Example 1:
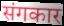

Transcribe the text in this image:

संगकार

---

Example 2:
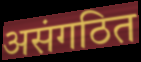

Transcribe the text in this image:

असंगठित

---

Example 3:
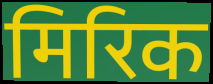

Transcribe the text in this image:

मिरिक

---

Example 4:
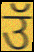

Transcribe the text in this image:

उॅ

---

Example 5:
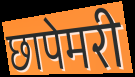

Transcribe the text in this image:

छापेमरी